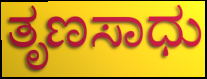
ತೃಣಸಾಧು